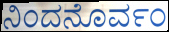
ನಿಂದನೊರ್ವಂ